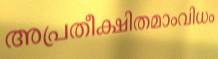
അപ്രതീക്ഷിതമാംവിധം